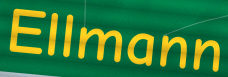
Ellmann